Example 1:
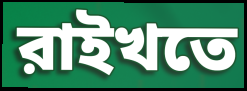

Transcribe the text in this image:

রাইখতে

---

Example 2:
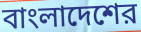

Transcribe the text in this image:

বাংলাদেশের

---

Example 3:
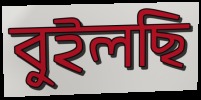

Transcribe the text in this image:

বুইলছি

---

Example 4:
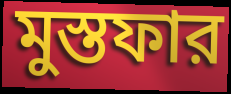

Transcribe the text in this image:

মুস্তফার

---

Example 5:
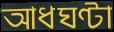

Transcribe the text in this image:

আধঘণ্টা